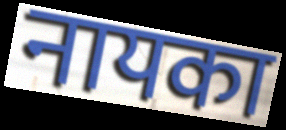
नायका